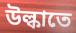
উল্কাতে